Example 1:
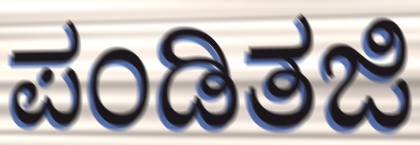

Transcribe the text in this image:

ಪಂಡಿತಜಿ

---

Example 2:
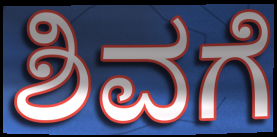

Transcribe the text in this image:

ಶಿವಗೆ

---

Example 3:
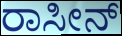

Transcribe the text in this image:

ರಾಸೀನ್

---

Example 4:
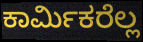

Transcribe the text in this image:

ಕಾರ್ಮಿಕರೆಲ್ಲ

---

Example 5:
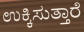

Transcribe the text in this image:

ಉಕ್ಕಿಸುತ್ತಾರೆ